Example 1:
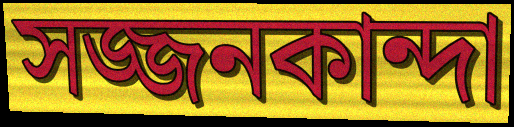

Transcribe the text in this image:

সজ্জনকান্দা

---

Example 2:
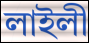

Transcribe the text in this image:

লাইলী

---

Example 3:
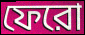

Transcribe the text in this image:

ফেরো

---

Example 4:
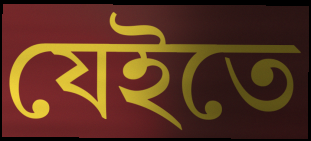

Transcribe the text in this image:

যেইতে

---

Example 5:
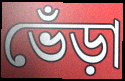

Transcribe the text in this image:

ভেঁড়া